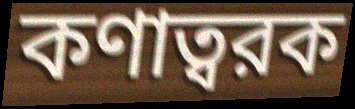
কণাত্বরক